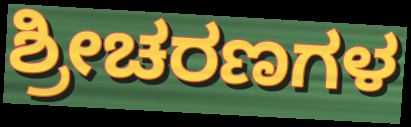
ಶ್ರೀಚರಣಗಳ